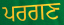
ਪਰਗਣ